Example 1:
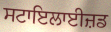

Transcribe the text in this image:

ਸਟਾਇਲਾਈਜ਼ਡ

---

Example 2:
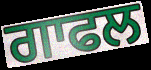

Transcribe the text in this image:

ਗਾਫਲ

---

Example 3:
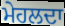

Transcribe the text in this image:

ਮੇਹਲਦਾ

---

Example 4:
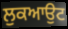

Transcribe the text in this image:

ਲੁਕਆਉਟ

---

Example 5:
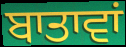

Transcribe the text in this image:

ਬਾਤਾਵਾਂ